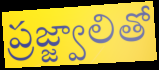
ప్రజ్జ్వాలితో